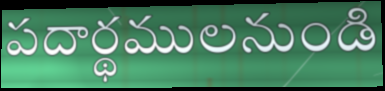
పదార్థములనుండి